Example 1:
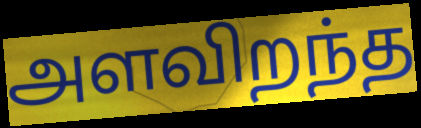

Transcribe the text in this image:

அளவிறந்த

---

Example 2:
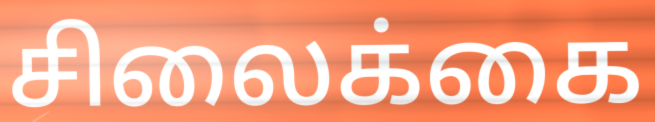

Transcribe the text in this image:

சிலைக்கை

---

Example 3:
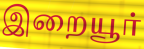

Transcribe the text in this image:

இறையூர்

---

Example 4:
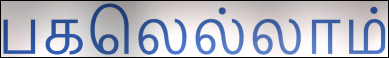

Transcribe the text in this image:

பகலெல்லாம்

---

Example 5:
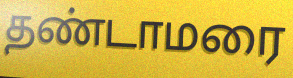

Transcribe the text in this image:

தண்டாமரை